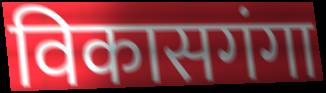
विकासगंगा